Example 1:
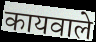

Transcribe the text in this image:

कायवाले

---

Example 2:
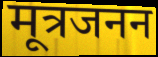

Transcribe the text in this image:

मूत्रजनन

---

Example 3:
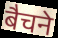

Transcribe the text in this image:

बैचने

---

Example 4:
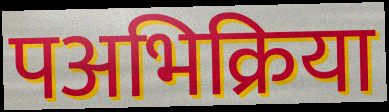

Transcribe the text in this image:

पअभिक्रिया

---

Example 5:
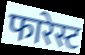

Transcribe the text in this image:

फारेस्ट